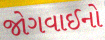
જોગવાઈનો